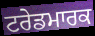
ਟਰੇਡਮਾਰਕ